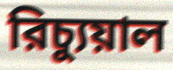
রিচ্যুয়াল